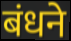
बंधने